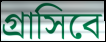
গ্রাসিবে